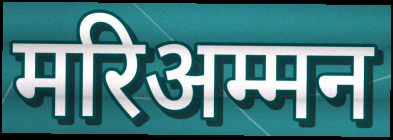
मरिअम्मन